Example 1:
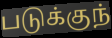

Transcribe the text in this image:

படுக்குந்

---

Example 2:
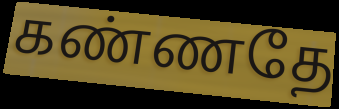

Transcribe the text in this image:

கண்ணதே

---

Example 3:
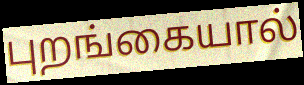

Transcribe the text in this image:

புறங்கையால்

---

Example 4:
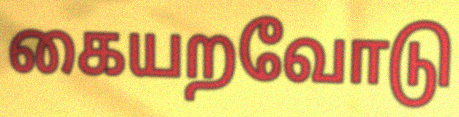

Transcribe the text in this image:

கையறவோடு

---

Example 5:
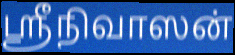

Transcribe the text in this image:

ஸ்ரீநிவாஸன்